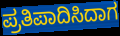
ಪ್ರತಿಪಾದಿಸಿದಾಗ